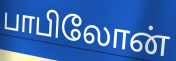
பாபிலோன்